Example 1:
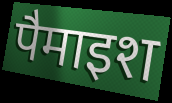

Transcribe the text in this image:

पैमाइश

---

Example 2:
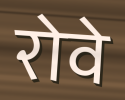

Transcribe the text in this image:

रोवे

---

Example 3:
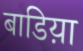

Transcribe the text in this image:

बाडिय़ा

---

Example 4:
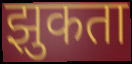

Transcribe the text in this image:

झुकता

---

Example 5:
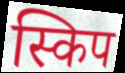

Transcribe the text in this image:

स्किप